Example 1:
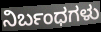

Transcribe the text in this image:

ನಿರ್ಬಂಧಗಳು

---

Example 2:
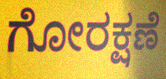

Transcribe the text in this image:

ಗೋರಕ್ಷಣೆ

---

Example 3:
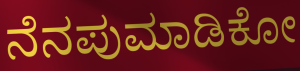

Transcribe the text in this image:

ನೆನಪುಮಾಡಿಕೋ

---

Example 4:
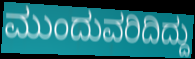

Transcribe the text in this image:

ಮುಂದುವರಿದಿದ್ದು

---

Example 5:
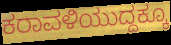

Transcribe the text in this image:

ಕರಾವಳಿಯುದ್ದಕ್ಕೂ